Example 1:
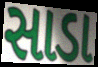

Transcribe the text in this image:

સાડા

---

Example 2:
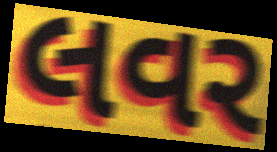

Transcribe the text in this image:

લવર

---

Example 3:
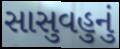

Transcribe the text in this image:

સાસુવહુનું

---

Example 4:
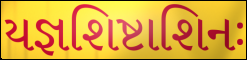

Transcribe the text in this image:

યજ્ઞશિષ્ટાશિનઃ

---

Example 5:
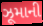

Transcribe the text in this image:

ઝૂમાની